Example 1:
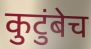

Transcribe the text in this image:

कुटुंबेच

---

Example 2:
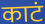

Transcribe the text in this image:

काटं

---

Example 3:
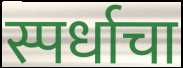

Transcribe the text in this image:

स्पर्धाचा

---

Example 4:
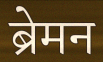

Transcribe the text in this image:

ब्रेमन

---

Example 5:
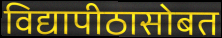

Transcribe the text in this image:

विद्यापीठासोबत